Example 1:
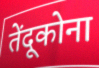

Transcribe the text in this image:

तेंदूकोना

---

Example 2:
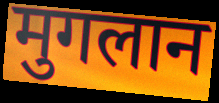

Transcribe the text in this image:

मुगलान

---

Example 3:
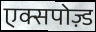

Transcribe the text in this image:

एक्सपोज़्ड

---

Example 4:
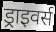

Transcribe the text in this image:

ड्राइवर्स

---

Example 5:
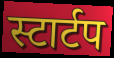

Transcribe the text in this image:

स्टार्टप